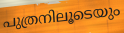
പുത്രനിലൂടെയും